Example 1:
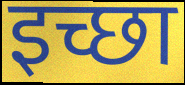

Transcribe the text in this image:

इच्छा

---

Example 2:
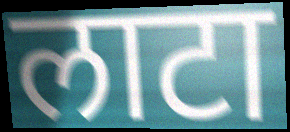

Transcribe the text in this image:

लाटा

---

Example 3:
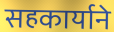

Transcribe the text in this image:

सहकार्याने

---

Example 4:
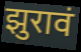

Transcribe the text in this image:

झुरावं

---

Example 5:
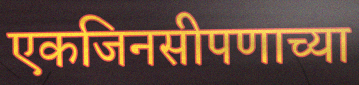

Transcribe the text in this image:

एकजिनसीपणाच्या